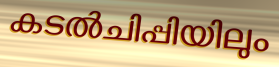
കടൽചിപ്പിയിലും